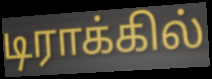
டிராக்கில்